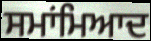
ਸਮਾਂਮਿਆਦ